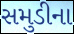
સમુડીના